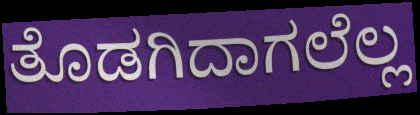
ತೊಡಗಿದಾಗಲೆಲ್ಲ